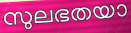
സുലഭതയാ